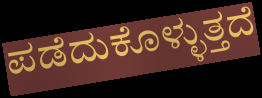
ಪಡೆದುಕೊಳ್ಳುತ್ತದೆ